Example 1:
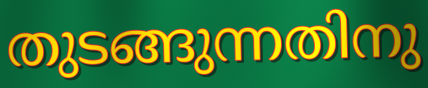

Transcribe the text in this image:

തുടങ്ങുന്നതിനു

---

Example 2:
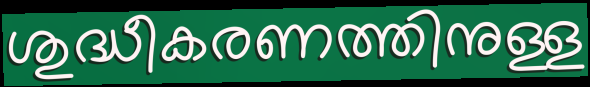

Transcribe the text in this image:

ശുദ്ധീകരണത്തിനുള്ള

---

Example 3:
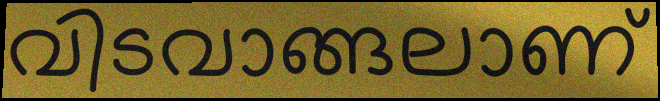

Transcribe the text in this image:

വിടവാങ്ങലാണ്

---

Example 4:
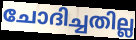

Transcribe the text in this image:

ചോദിച്ചതില്ല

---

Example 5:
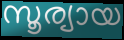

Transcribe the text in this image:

സൂര്യായ